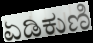
ಏಡಿಕುಣಿ